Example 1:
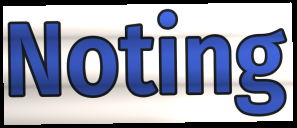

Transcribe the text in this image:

Noting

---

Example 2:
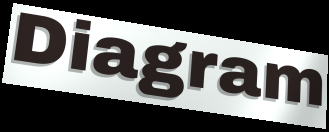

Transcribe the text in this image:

Diagram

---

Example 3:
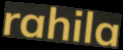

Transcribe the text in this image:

rahila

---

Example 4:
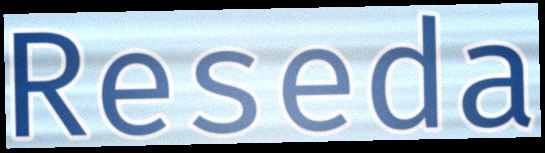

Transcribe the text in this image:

Reseda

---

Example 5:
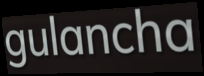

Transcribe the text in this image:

gulancha